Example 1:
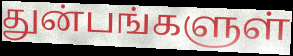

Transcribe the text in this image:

துன்பங்களுள்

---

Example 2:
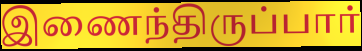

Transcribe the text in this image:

இணைந்திருப்பார்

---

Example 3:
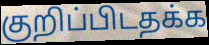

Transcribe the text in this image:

குறிப்பிடதக்க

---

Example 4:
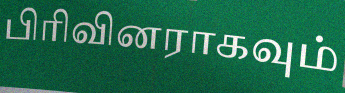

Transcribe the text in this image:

பிரிவினராகவும்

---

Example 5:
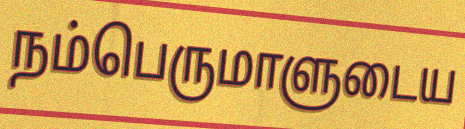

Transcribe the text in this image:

நம்பெருமாளுடைய